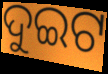
ଦୁଇଟ